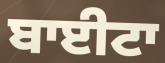
ਬਾਈਟਾ